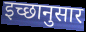
इच्छानुसार